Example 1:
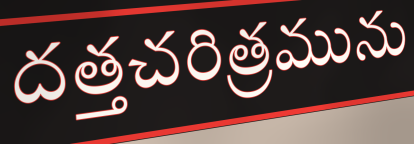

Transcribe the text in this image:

దత్తచరిత్రమును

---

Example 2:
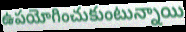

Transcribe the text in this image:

ఉపయోగించుకుంటున్నాయి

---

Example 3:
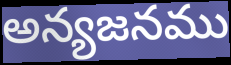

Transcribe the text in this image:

అన్యజనము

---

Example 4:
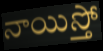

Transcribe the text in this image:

నాయిస్తో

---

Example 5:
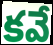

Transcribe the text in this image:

కవే